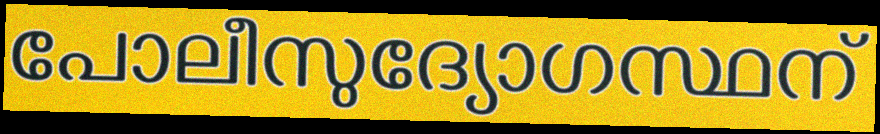
പോലീസുദ്യോഗസ്ഥന്